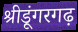
श्रीडूंगरगढ़